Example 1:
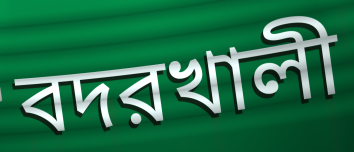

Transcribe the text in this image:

বদরখালী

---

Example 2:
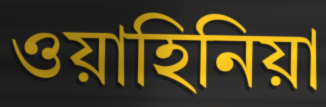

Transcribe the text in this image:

ওয়াহিনিয়া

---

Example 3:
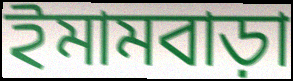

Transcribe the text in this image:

ইমামবাড়া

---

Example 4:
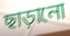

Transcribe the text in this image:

ছাড়ানো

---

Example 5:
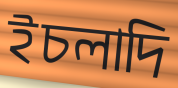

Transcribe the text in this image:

ইচলাদি